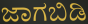
ಜಾಗಬಿಡಿ